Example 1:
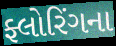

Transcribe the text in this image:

ફ્લોરિંગના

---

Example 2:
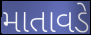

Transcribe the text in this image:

માતાવડે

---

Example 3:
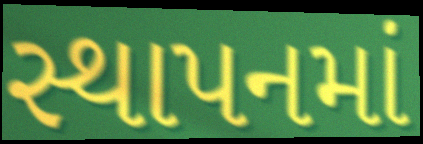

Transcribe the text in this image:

સ્થાપનમાં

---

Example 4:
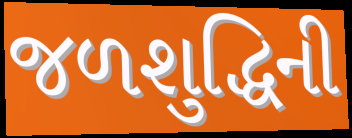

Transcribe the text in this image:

જળશુદ્ધિની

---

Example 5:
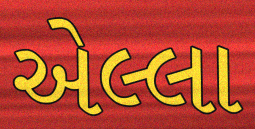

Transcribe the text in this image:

એલ્લા